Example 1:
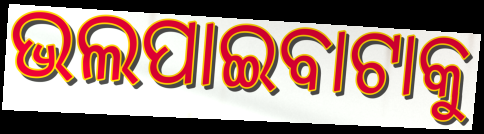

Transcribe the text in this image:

ଭଲପାଇବାଟାକୁ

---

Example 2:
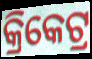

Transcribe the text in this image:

କ୍ରିକେଟ୍ର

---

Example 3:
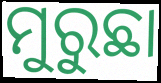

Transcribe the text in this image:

ମୁରୁଛା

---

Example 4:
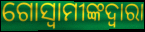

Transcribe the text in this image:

ଗୋସ୍ୱାମୀଙ୍କଦ୍ୱାରା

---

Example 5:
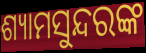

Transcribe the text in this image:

ଶ୍ୟାମସୁନ୍ଦରଙ୍କ